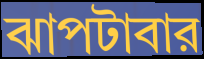
ঝাপটাবার